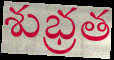
శుభ్రత